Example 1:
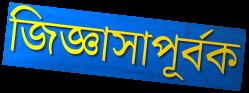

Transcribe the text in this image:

জিজ্ঞাসাপূর্বক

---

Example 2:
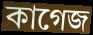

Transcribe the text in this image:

কাগেজ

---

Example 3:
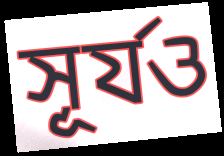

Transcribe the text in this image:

সূর্যও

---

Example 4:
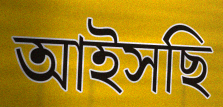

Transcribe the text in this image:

আইসছি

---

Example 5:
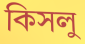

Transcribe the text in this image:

কিসলু